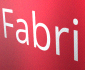
Fabri